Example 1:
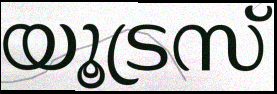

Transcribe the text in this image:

യൂട്രസ്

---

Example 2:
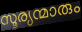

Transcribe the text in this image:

സൂര്യന്മാരും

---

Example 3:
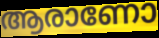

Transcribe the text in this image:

ആരാണോ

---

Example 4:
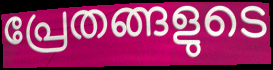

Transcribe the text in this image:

പ്രേതങ്ങളുടെ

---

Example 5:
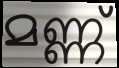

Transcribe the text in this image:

മണ്ണ്